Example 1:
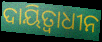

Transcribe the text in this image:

ଦାୟିତ୍ୱାଧୀନ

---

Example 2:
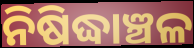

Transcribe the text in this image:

ନିଷିଦ୍ଧାଞ୍ଚଳ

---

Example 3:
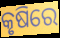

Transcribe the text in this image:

କୃଷିରେ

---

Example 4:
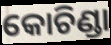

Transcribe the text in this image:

କୋଚିଣ୍ଡା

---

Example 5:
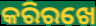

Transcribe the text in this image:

କରିରଖେ